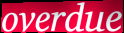
overdue